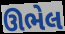
ઊભેલ